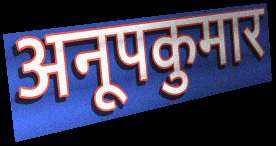
अनूपकुमार